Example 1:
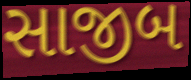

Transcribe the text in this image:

સાજીબ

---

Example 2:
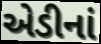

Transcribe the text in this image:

એડીનાં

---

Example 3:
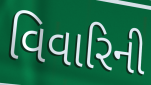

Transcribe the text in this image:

વિવારિની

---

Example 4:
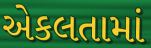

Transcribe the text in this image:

એકલતામાં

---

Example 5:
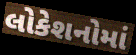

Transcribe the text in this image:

લોકેશનોમાં